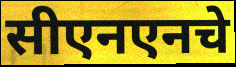
सीएनएनचे